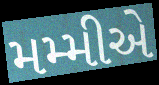
મમ્મીએ